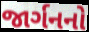
જાર્ગનનો